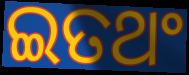
ଇତଥଂ